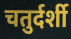
चतुर्दर्शी